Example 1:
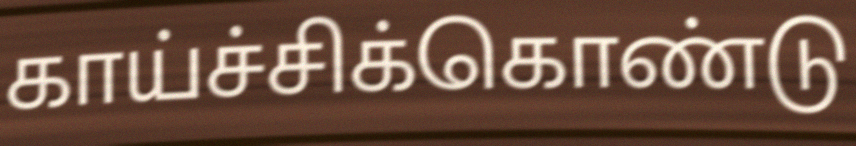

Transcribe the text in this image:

காய்ச்சிக்கொண்டு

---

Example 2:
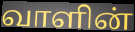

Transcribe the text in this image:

வாளின்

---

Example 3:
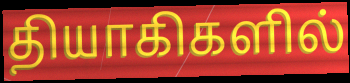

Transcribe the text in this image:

தியாகிகளில்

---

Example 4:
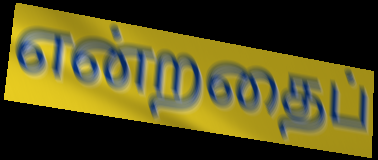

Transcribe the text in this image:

என்றதைப்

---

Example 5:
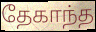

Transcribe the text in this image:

தேகாந்த